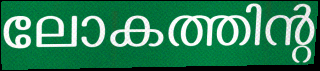
ലോകത്തിന്റ